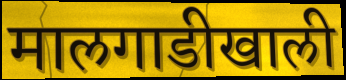
मालगाडीखाली